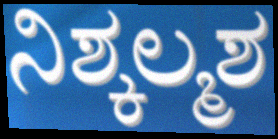
ನಿಶ್ಕಲ್ಮಶ